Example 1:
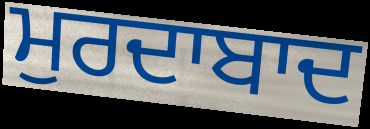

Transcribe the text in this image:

ਮੁਰਦਾਬਾਦ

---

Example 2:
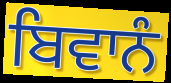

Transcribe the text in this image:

ਬਿਵਾਨੰ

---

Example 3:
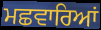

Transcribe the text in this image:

ਮਛਵਾਰਿਆਂ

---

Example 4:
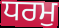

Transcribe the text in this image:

ਧਰਮੁ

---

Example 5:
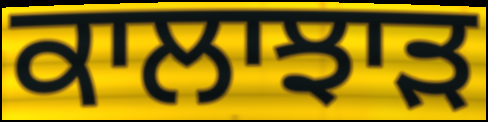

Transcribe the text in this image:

ਕਾਲਾਝਾਡ਼